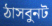
ঠাসবুনট